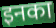
इनका